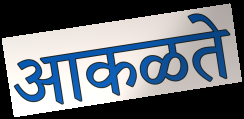
आकळते